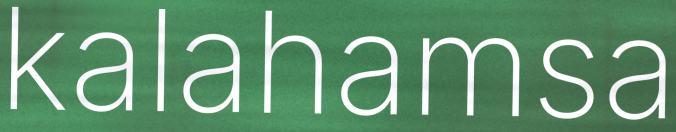
kalahamsa